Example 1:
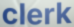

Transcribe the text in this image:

clerk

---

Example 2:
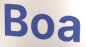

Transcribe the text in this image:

Boa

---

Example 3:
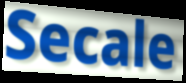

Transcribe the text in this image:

Secale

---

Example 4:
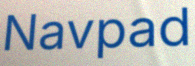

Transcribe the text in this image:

Navpad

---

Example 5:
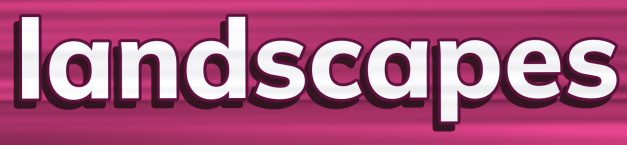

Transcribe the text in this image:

landscapes